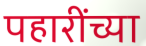
पहारींच्या